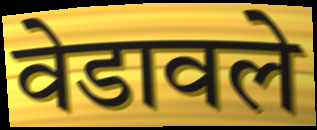
वेडावले